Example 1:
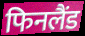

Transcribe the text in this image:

फिनलैंड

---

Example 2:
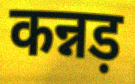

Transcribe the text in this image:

कन्नड़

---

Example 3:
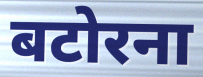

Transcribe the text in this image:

बटोरना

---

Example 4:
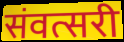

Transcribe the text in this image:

संवत्सरी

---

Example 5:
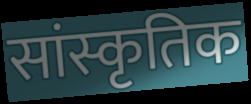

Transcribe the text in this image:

सांस्‍कृतिक